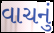
વાચનું